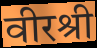
वीरश्री